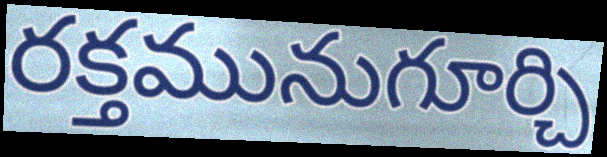
రక్తమునుగూర్చి